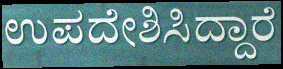
ಉಪದೇಶಿಸಿದ್ದಾರೆ